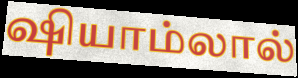
ஷியாம்லால்